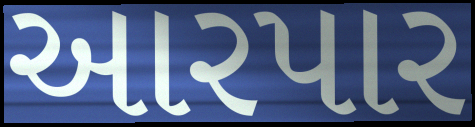
આરપાર